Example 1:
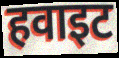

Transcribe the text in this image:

हवाइट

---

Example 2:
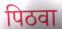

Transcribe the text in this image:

पिठवा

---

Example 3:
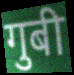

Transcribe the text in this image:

गुबी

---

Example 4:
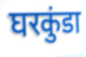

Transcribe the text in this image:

घरकुंडा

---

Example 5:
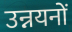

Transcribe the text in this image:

उन्नयनों